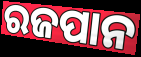
ରଜପାନ